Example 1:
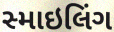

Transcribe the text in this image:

સ્માઇલિંગ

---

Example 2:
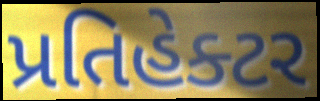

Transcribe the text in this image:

પ્રતિહેક્ટર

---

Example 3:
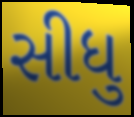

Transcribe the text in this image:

સીધુ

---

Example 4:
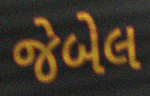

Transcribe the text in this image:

જેબેલ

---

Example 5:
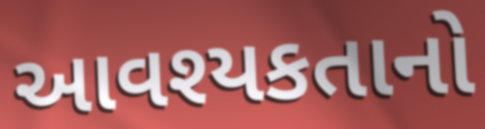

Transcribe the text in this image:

આવશ્યકતાનો